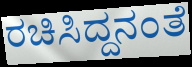
ರಚಿಸಿದ್ದನಂತೆ